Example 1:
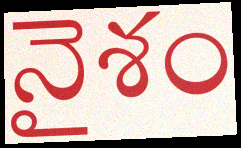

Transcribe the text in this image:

నైశం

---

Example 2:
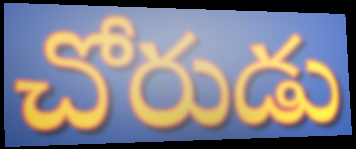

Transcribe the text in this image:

చోరుడు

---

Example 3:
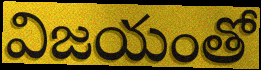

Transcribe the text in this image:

విజయంతో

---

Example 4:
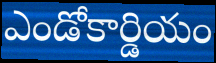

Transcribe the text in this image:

ఎండోకార్డియం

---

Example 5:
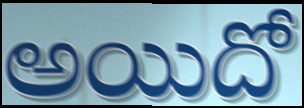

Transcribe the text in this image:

అయిదో